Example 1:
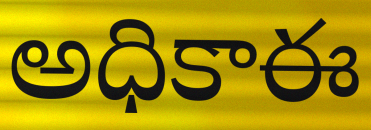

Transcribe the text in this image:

అధికాఈ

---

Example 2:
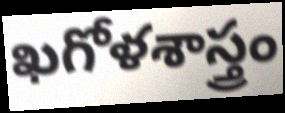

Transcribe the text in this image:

ఖగోళశాస్త్రం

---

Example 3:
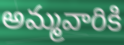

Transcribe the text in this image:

అమ్మవారికి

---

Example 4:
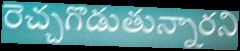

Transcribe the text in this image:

రెచ్చగొడుతున్నారని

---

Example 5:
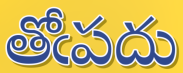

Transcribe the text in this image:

తోఁపదు